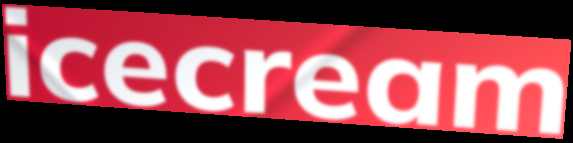
icecream